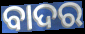
ବାଦର